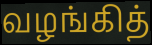
வழங்கித்